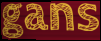
gans